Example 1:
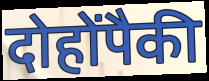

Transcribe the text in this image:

दोहोंपैकी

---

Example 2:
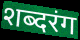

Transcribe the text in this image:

शब्दरंग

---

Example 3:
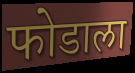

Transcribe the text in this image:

फोडाला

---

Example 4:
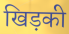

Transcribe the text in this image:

खिड़की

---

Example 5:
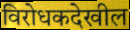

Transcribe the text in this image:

विरोधकदेखील